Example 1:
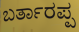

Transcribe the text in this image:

ಬರ್ತಾರಪ್ಪ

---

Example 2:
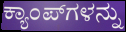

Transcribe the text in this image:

ಕ್ಯಾಂಪ್‍ಗಳನ್ನು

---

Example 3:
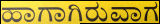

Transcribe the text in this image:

ಹಾಗಾಗಿರುವಾಗ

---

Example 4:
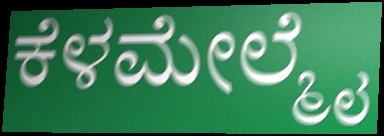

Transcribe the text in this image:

ಕೆಳಮೇಲ್ಮೈ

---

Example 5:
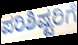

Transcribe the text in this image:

ಪರಿಶಿಷ್ಟರಿಗೆ